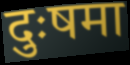
दुःषमा